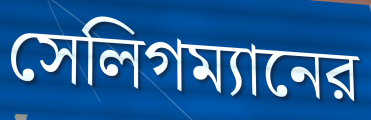
সেলিগম্যানের